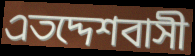
এতদ্দেশবাসী